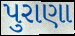
પુરાણા